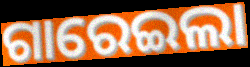
ଗାରେଇଲା